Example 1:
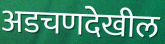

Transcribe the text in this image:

अडचणदेखील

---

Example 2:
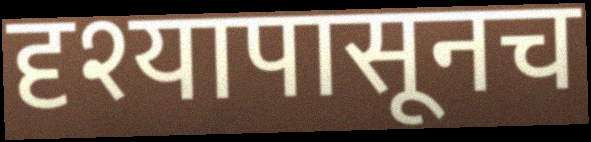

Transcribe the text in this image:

दृश्यापासूनच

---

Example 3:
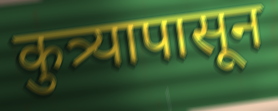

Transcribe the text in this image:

कुत्र्यापासून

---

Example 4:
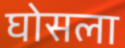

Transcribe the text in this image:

घोसला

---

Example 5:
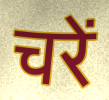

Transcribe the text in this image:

चरें